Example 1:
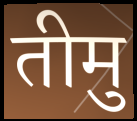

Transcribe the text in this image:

तीमु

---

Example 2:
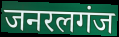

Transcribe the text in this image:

जनरलगंज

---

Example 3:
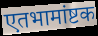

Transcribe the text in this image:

एतभामांष्टक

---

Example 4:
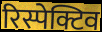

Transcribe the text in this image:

रिस्पेक्टिव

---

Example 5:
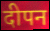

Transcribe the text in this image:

दीपन